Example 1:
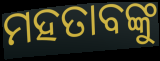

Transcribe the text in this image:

ମହତାବଙ୍କୁ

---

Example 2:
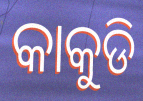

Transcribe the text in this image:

କାକୁଡି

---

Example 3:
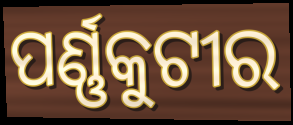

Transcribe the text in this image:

ପର୍ଣ୍ଣକୁଟୀର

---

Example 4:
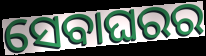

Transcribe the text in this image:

ସେବାଘରର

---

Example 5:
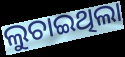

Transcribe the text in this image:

ଲୁଚାଇଥିଲା